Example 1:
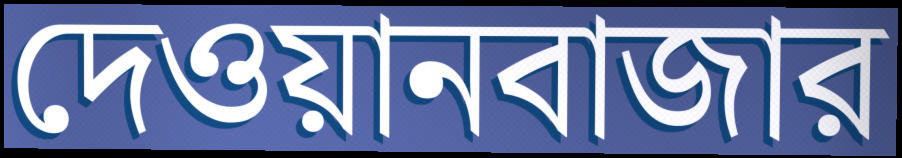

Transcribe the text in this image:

দেওয়ানবাজার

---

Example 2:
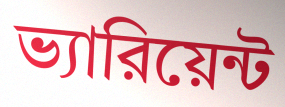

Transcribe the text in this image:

ভ্যারিয়েন্ট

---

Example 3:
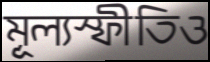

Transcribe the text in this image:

মূল্যস্ফীতিও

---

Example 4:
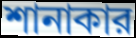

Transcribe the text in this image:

শানাকার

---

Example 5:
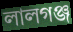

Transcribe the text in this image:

লালগঞ্জ